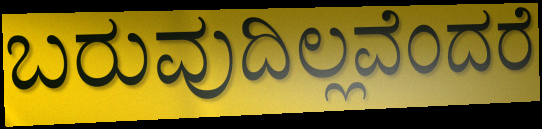
ಬರುವುದಿಲ್ಲವೆಂದರೆ